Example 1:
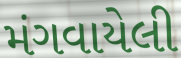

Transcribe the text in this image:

મંગવાયેલી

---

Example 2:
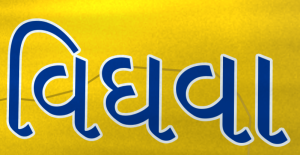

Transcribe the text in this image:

વિઘવા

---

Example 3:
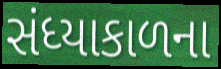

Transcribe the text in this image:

સંધ્યાકાળના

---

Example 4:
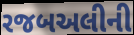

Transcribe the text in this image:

રજબઅલીની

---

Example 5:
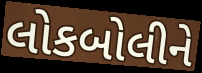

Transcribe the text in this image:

લોકબોલીને